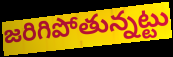
జరిగిపోతున్నట్టు